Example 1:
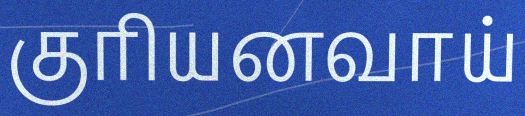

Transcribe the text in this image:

குரியனவாய்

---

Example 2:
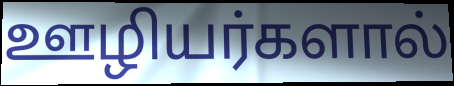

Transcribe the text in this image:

ஊழியர்களால்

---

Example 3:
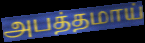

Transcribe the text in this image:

அபத்தமாய்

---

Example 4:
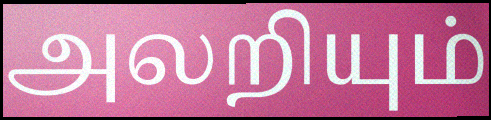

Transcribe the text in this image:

அலறியும்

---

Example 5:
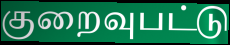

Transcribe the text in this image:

குறைவுபட்டு